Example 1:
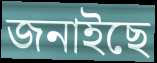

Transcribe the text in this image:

জনাইছে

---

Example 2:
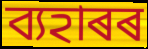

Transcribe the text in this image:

ব্যহাৰৰ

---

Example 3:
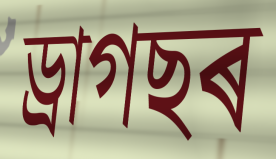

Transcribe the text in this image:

ড্ৰাগছৰ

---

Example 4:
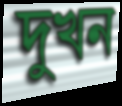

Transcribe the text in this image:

দুখন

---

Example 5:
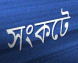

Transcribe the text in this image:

সংকটে